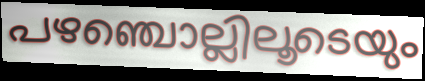
പഴഞ്ചൊല്ലിലൂടെയും